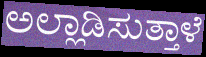
ಅಲ್ಲಾಡಿಸುತ್ತಾಳೆ